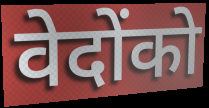
वेदोंको